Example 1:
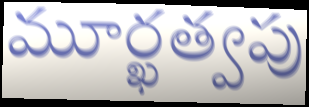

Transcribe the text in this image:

మూర్ఖత్వపు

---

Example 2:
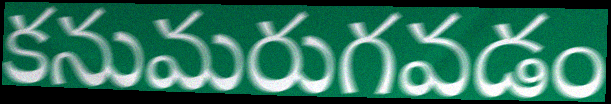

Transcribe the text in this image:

కనుమరుగవడం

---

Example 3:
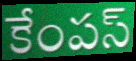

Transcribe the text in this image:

కేంపస్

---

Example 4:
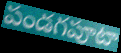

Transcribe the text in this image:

పండగపూటా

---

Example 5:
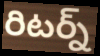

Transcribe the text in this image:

రిటర్న్